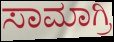
ಸಾಮಾಗ್ರಿ